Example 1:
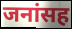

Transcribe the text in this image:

जनांसह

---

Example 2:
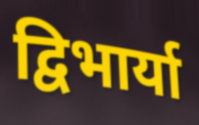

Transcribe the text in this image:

द्विभार्या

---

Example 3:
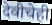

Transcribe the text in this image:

देवीचेही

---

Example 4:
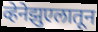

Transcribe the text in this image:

व्हेनेझुएलातून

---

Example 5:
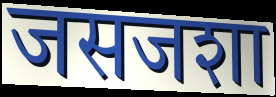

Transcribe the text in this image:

जसजशा